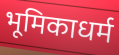
भूमिकाधर्म